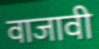
वाजावी